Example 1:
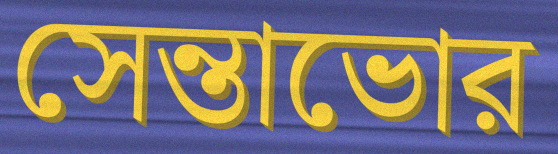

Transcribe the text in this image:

সেন্তাভোর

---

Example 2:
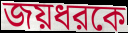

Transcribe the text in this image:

জয়ধরকে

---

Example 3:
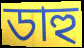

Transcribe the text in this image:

ডাহু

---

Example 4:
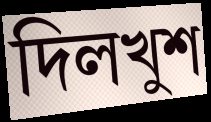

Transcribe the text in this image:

দিলখুশ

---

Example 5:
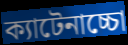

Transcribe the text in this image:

ক্যাটেনাচ্চো